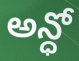
అన్ధో